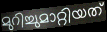
മുറിച്ചുമാറ്റിയത്